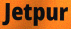
Jetpur